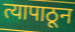
त्यापाठून